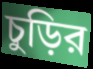
চুড়ির